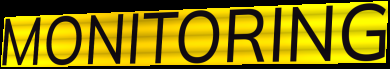
MONITORING